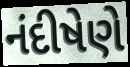
નંદીષેણે